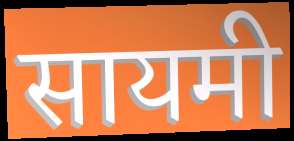
सायमी